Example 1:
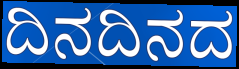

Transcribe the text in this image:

ದಿನದಿನದ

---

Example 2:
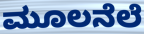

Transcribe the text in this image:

ಮೂಲನೆಲೆ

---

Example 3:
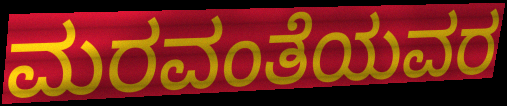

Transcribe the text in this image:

ಮರವಂತೆಯವರ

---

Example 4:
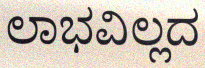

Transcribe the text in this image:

ಲಾಭವಿಲ್ಲದ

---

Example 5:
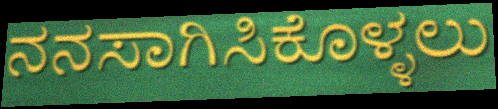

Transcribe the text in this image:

ನನಸಾಗಿಸಿಕೊಳ್ಳಲು